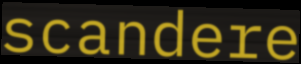
scandere